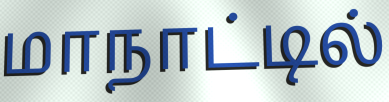
மாநாட்டில்